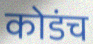
कोडंच